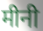
मीनी